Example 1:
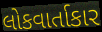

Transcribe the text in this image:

લોકવાર્તાકાર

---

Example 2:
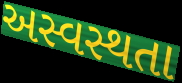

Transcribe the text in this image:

અસ્વસ્થતા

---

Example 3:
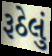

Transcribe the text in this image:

રૂઠેલું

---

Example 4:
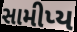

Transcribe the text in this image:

સામીપ્ય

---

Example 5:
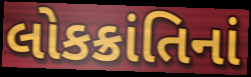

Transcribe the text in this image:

લોકક્રાંતિનાં